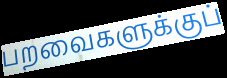
பறவைகளுக்குப்